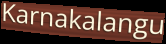
Karnakalangu